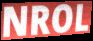
NROL